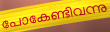
പോകേണ്ടിവന്നു